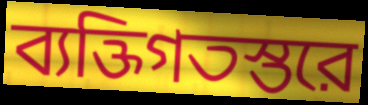
ব্যক্তিগতস্তরে